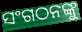
ସଂଗଠନଙ୍କୁ